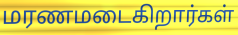
மரணமடைகிறார்கள்